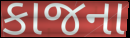
કાજના